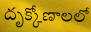
దృక్కోణాలలో